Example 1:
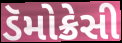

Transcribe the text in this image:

ડૅમોક્રેસી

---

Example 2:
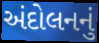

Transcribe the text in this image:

અંદોલનનું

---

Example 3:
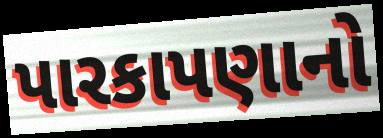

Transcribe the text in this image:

પારકાપણાનો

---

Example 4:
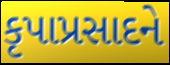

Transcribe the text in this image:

કૃપાપ્રસાદને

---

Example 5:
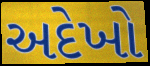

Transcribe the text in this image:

અદેખો